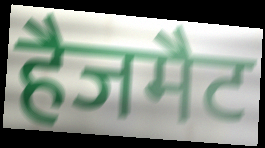
हैजमैट